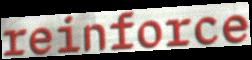
reinforce